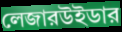
লেজারউইডার